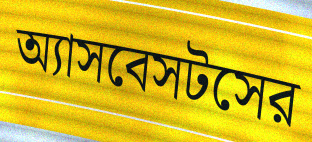
অ্যাসবেসটসের